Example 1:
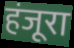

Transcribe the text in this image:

हंजूरा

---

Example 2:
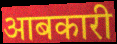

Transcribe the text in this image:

आबकारी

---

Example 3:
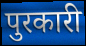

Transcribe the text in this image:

पुरकारी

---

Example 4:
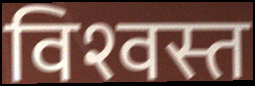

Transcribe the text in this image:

विश्वस्त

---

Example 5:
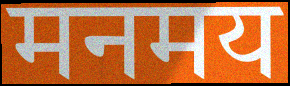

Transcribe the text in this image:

मनमय